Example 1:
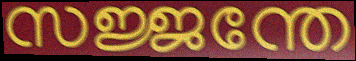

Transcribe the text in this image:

സജ്ജന്തേ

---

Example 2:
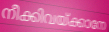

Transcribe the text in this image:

നീക്കിവയ്ക്കാനേ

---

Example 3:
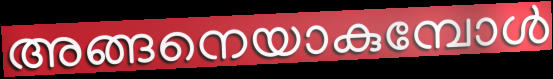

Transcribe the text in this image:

അങ്ങനെയാകുമ്പോൾ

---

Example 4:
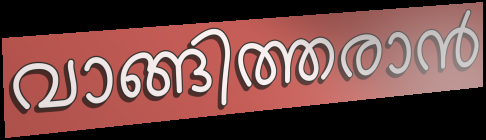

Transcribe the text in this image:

വാങ്ങിത്തരാൻ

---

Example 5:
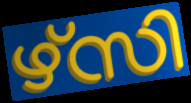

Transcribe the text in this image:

ഴ്സി